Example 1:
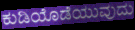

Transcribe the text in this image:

ಕುಡಿಯೊಡೆಯುವುದು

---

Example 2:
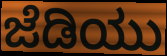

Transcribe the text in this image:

ಜೆಡಿಯು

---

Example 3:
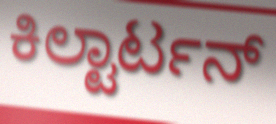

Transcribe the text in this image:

ಕಿಲ್ಟಾರ್ಟನ್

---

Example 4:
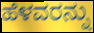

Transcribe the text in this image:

ಹೆಳವರನ್ನು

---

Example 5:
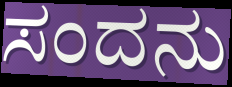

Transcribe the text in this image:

ಸಂದನು